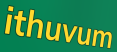
ithuvum